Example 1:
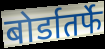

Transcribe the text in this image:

बोर्डातर्फे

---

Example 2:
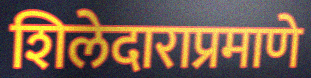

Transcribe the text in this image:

शिलेदाराप्रमाणे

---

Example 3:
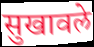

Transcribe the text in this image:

सुखावले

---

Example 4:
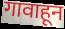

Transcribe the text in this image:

गावाहून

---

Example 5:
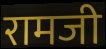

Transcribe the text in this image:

रामजी